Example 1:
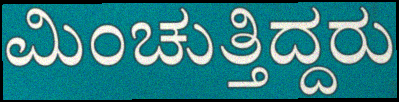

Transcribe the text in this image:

ಮಿಂಚುತ್ತಿದ್ದರು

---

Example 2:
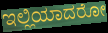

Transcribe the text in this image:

ಇಲ್ಲಿಯಾದರೋ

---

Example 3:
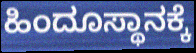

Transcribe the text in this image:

ಹಿಂದೂಸ್ಥಾನಕ್ಕೆ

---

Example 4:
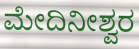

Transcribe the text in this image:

ಮೇದಿನೀಶ್ವರ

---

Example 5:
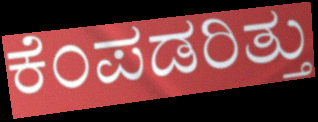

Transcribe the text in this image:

ಕೆಂಪಡರಿತ್ತು